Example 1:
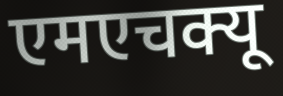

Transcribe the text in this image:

एमएचक्यू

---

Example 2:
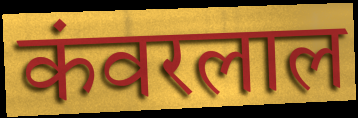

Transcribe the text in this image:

कंवरलाल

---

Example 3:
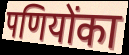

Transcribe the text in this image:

पणियोंका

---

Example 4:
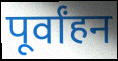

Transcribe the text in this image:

पूर्वांहन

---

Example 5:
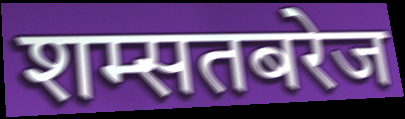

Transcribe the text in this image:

शम्सतबरेज